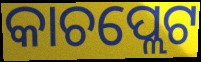
କାଚପ୍ଲେଟ